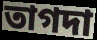
তাগদা